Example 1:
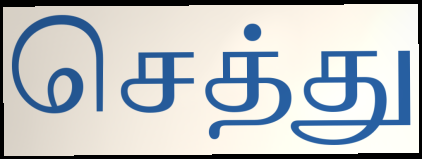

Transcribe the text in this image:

செத்து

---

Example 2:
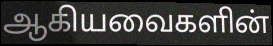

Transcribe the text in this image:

ஆகியவைகளின்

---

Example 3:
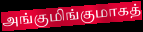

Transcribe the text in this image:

அங்குமிங்குமாகத்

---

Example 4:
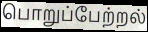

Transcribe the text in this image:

பொறுப்பேற்றல்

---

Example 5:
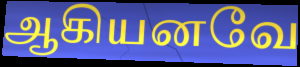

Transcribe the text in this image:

ஆகியனவே